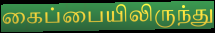
கைப்பையிலிருந்து